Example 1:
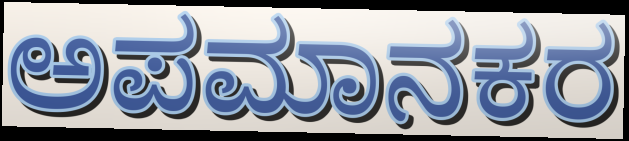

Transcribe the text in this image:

ಅಪಮಾನಕರ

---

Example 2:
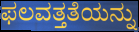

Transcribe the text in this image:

ಫಲವತ್ತತೆಯನ್ನು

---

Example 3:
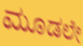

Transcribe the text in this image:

ಮೂಡಲೇ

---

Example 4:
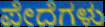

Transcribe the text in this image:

ಪೇದೆಗಳು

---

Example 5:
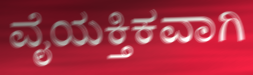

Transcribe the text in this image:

ವೈಯಕ್ತಿಕವಾಗಿ